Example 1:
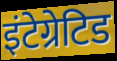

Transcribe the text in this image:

इंटेग्रेटिड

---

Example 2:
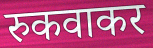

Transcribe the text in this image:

रुकवाकर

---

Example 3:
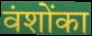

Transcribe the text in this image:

वंशोंका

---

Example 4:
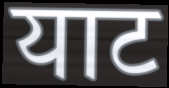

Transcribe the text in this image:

याट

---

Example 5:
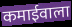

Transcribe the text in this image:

कमाईवाला